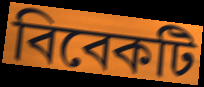
বিবেকটি